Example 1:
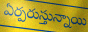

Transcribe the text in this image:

ఏర్పరుస్తున్నాయి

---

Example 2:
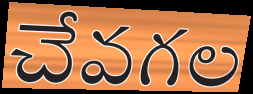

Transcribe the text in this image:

చేవగల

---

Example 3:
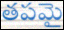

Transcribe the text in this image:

తపమై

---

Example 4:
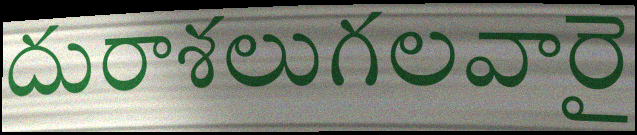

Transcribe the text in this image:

దురాశలుగలవారై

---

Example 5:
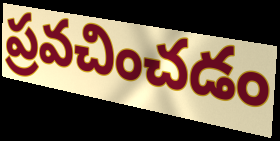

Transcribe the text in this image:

ప్రవచించడం